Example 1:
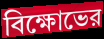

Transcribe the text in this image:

বিক্ষোভের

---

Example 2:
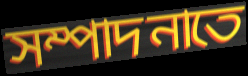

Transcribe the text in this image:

সম্পাদনাতে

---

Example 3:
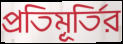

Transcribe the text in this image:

প্রতিমূর্তির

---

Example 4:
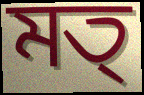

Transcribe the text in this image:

মত্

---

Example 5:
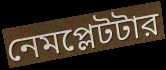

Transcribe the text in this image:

নেমপ্লেটটার